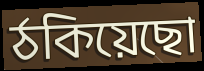
ঠকিয়েছো